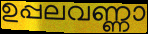
ഉപ്പലവണ്ണാ